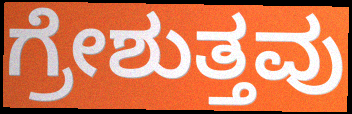
ಗ್ರೇಶುತ್ತವು